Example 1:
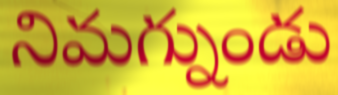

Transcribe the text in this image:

నిమగ్నుండు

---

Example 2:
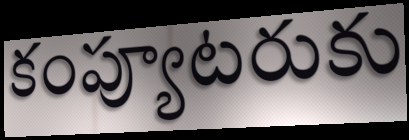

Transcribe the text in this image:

కంప్యూటరుకు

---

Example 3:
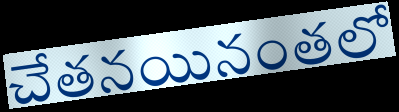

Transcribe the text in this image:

చేతనయినంతలో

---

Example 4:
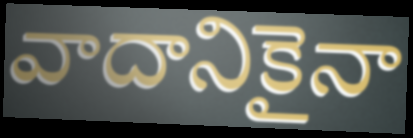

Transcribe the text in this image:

వాదానికైనా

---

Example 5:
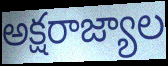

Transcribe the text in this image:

అక్షరాజ్యాల